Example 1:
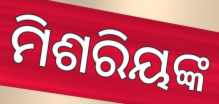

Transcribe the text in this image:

ମିଶରିୟଙ୍କ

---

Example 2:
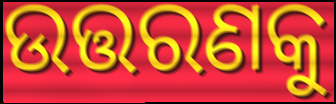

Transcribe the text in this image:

ଉତ୍ତରଣକୁ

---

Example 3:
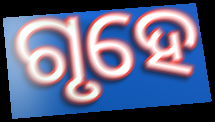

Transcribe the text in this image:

ଗୃହେ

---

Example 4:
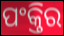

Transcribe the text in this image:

ପଂକ୍ତିର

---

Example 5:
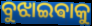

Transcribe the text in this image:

ବୁଝାଇଵାକୁ